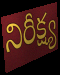
నిరీక్ష్య